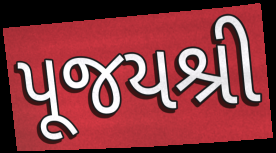
પૂજયશ્રી